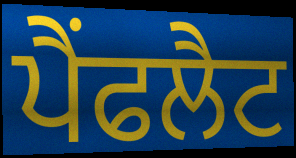
ਪੈਂਫਲੈਟ